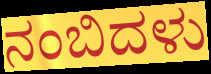
ನಂಬಿದಳು